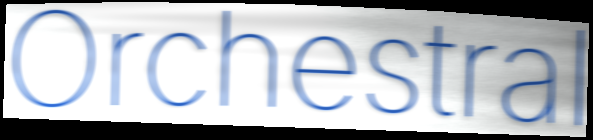
Orchestral